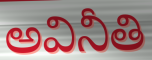
అవినీతి